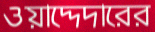
ওয়াদ্দেদারের